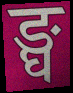
ङ्घ